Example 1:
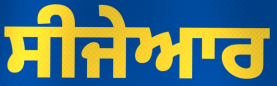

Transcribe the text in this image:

ਸੀਜੇਆਰ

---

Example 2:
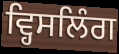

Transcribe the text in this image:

ਵ੍ਹਿਸਲਿੰਗ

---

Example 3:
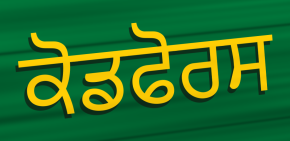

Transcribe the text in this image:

ਕੋਡਫੋਰਸ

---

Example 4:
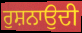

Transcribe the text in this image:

ਰੁਸ਼ਨਾਉਦੀ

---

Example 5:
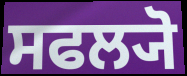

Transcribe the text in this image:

ਸਫਲ੍ਯੋ